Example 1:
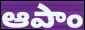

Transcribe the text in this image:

ఆపాం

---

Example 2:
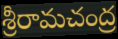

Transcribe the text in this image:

శ్రీరామచంద్ర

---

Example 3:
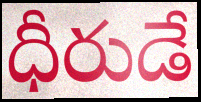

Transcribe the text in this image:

ధీరుడే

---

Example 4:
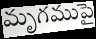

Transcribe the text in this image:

మృగముపై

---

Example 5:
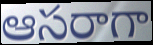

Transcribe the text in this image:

ఆసరాగా